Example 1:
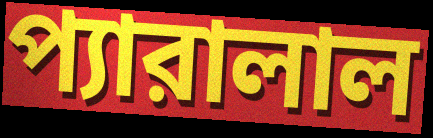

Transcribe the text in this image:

প্যারালাল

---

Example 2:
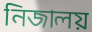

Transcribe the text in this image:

নিজালয়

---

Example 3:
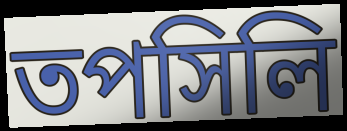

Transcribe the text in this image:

তপসিলি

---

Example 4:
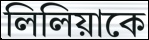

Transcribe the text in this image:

লিলিয়াকে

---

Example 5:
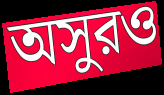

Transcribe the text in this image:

অসুরও